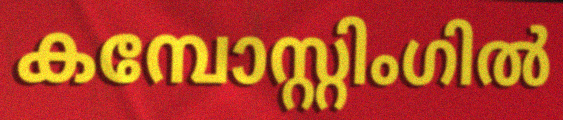
കമ്പോസ്റ്റിംഗിൽ